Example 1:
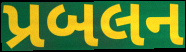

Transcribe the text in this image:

પ્રબલન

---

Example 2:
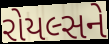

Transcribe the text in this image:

રોયલ્સને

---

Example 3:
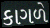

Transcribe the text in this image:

કાગળે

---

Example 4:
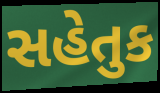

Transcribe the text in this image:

સહેતુક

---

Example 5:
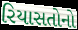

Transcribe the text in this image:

રિયાસતોનો